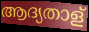
ആദ്യതാള്